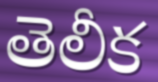
తెలీక